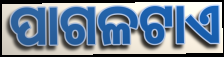
ପାଗଳଟାଏ